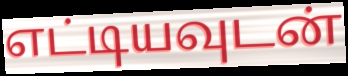
எட்டியவுடன்